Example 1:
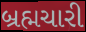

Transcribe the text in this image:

બ્રહ્મચારી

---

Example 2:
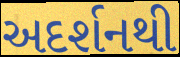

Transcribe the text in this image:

અદર્શનથી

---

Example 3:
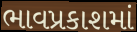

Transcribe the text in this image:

ભાવપ્રકાશમાં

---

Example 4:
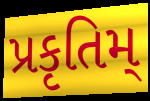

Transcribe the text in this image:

પ્રકૃતિમ્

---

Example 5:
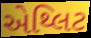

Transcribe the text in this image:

એથ્લિટ